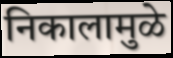
निकालामुळे